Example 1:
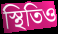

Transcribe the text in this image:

স্থিতিও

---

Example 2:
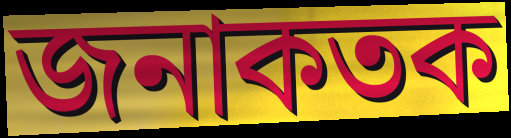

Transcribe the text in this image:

জনাকতক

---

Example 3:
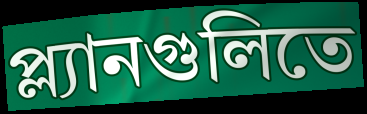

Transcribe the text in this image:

প্ল্যানগুলিতে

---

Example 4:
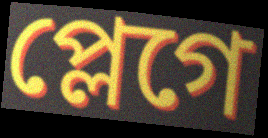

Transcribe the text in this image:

প্লেগে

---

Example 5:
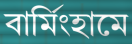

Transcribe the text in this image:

বার্মিংহামে